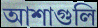
আশাগুলি